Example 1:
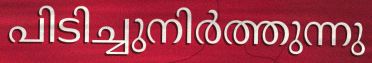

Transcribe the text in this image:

പിടിച്ചുനിർത്തുന്നു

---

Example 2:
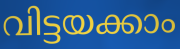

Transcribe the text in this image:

വിട്ടയക്കാം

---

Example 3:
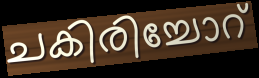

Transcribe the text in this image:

ചകിരിച്ചോറ്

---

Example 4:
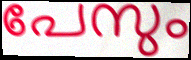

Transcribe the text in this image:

പേസും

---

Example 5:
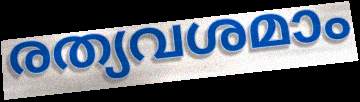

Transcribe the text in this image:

രത്യവശമാം